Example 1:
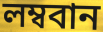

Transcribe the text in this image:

লম্ববান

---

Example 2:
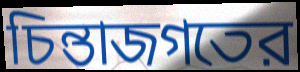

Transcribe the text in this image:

চিন্তাজগতের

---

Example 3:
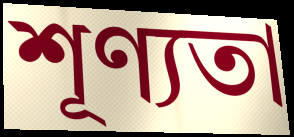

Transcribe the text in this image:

শূণ্যতা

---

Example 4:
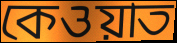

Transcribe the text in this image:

কেওয়াত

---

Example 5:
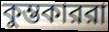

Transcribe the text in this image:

কুম্ভকাররা